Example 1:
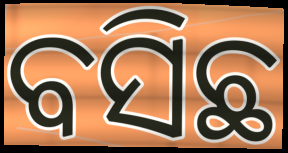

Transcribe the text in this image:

ବସିଛ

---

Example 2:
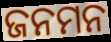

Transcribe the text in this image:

ଜନମନ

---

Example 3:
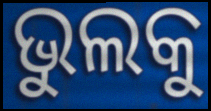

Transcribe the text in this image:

ଭୁଲକୁ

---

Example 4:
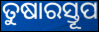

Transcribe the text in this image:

ତୁଷାରସ୍ତୂପ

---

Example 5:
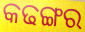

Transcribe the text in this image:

କଢଙ୍ଗର